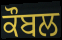
ਕੌਬਲ